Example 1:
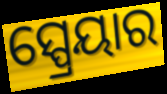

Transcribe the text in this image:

ସ୍ପ୍ରେୟାର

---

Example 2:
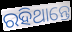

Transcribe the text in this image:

ରହିଥାନ୍ତେ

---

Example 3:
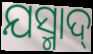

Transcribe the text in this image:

ଯସ୍ମାଦ୍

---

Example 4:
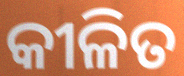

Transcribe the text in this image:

କୀଳିତ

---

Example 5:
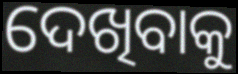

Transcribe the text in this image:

ଦେଖିବାକୁ